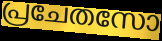
പ്രചേതസോ